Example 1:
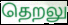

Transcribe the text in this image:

தெறலு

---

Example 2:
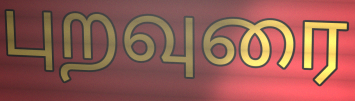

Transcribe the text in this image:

புறவுரை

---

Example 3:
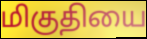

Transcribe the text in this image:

மிகுதியை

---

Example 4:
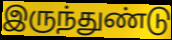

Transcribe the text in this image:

இருந்துண்டு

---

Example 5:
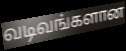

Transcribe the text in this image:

வடிவங்களான